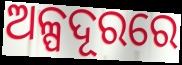
ଅଳ୍ପଦୂରରେ